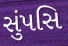
સુંપસિ